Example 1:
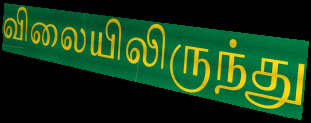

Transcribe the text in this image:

விலையிலிருந்து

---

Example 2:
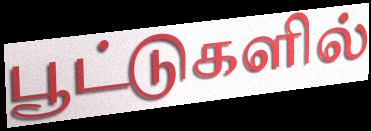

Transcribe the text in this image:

பூட்டுகளில்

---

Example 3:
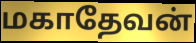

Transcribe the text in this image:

மகாதேவன்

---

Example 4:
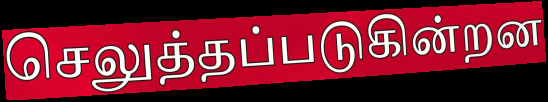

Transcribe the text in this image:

செலுத்தப்படுகின்றன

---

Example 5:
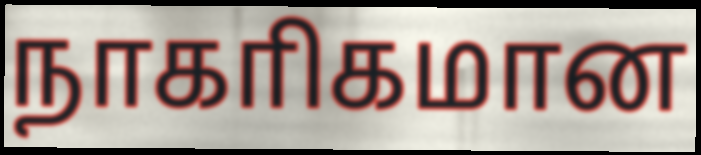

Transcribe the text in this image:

நாகரிகமான